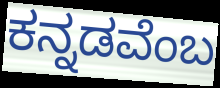
ಕನ್ನಡವೆಂಬ